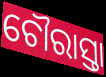
ଚୌରାସ୍ତା